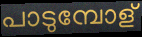
പാടുമ്പോള്